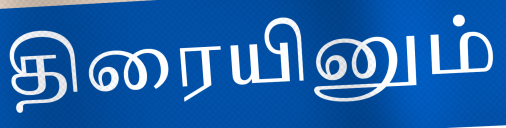
திரையினும்